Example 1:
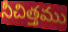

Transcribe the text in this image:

నీచిత్తము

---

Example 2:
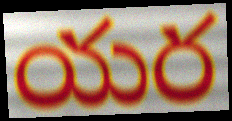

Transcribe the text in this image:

యర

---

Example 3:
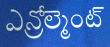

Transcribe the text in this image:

ఎన్రోల్మెంట్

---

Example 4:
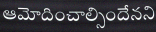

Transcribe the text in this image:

ఆమోదించాల్సిందేనని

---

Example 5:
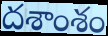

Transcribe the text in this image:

దశాంశం